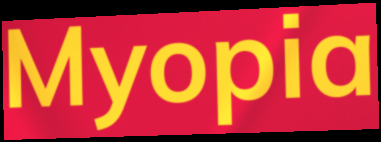
Myopia